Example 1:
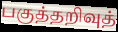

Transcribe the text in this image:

பகுத்தறிவுத்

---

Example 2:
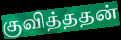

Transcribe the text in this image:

குவித்ததன்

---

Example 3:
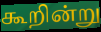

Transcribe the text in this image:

கூறின்று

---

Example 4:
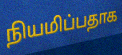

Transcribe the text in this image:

நியமிப்பதாக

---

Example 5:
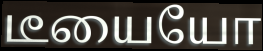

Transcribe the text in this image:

டீயையோ